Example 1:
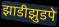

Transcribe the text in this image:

झाडीझुडपे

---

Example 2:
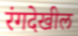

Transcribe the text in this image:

रंगदेखील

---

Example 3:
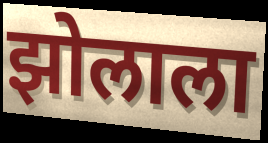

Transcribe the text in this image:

झोलाला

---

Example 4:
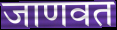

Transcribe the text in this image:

जाणवत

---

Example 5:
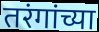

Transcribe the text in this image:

तरंगांच्या